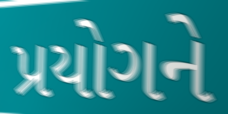
પ્રયોગને